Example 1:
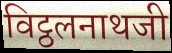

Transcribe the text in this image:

विट्ठलनाथजी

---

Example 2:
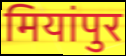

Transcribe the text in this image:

मियांपुर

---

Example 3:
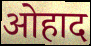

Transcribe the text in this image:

ओहाद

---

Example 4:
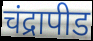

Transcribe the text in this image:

चंद्रापीड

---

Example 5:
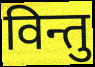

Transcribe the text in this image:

विन्तु